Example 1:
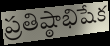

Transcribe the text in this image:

ప్రతిష్ఠాభిషేక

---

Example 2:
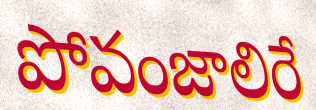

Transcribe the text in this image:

పోవంజాలిరే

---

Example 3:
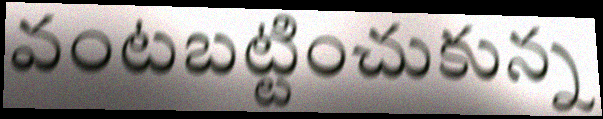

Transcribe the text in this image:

వంటబట్టించుకున్న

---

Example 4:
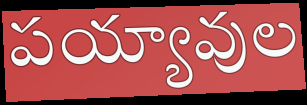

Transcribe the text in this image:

పయ్యావుల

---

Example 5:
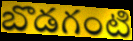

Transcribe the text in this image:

బొడగంటి